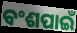
ବଂଶପାଇଁ